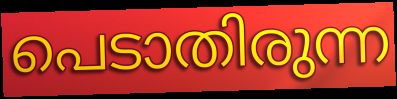
പെടാതിരുന്ന